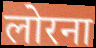
लोरना